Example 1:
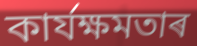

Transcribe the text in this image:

কাৰ্যক্ষমতাৰ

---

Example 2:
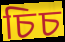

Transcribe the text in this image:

চিচ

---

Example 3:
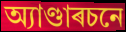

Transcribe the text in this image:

অ্যাণ্ডাৰচনে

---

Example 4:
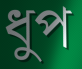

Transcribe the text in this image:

ধুপ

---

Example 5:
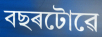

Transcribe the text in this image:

বছৰটোৱে